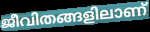
ജീവിതങ്ങളിലാണ്